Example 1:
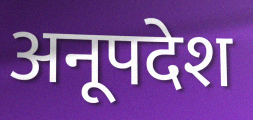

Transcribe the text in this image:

अनूपदेश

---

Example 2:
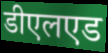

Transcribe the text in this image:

डीएलएड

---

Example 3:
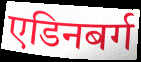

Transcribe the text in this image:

एडिनबर्ग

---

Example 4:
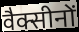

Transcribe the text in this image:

वैक्सीनों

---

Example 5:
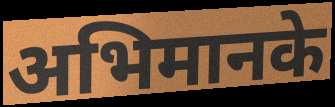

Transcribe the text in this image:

अभिमानके